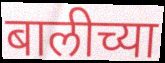
बालीच्या